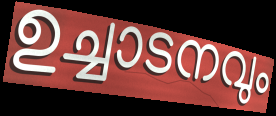
ഉച്ചാടനവും